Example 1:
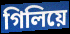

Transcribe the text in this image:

গিলিয়ে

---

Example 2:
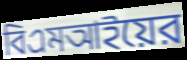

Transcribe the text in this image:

বিএমআইয়ের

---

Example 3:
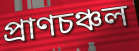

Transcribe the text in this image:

প্রাণচঞ্চল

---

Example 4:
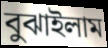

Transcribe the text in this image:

বুঝাইলাম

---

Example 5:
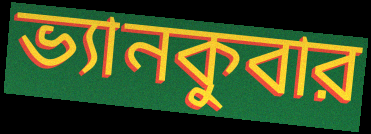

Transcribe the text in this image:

ভ্যানকুবার